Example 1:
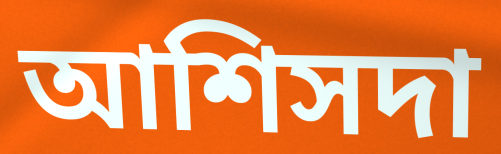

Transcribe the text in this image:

আশিসদা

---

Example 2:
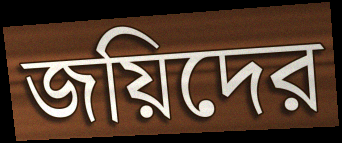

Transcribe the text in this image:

জয়িদের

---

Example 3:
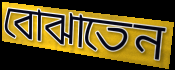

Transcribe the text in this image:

বোঝাতেন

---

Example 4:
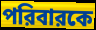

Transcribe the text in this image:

পরিবারকে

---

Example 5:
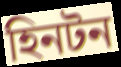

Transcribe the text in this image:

হিনটন